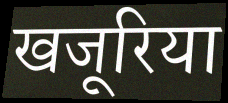
खजूरिया